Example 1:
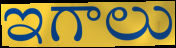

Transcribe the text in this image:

ఇగాలు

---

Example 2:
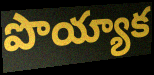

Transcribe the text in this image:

పొయ్యాక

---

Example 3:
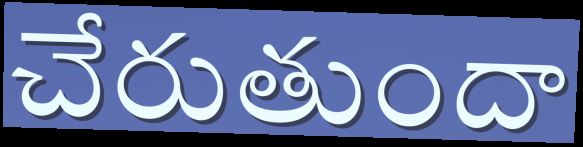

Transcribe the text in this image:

చేరుతుందా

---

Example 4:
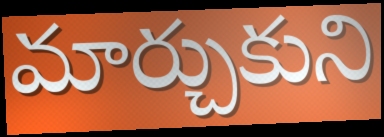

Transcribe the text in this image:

మార్చుకుని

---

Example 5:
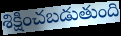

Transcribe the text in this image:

శిక్షించబడుతుంది